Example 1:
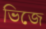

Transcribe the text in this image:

ভিজে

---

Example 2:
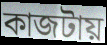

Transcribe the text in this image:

কাজটায়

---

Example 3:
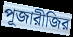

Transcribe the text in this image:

পূজারীজির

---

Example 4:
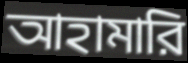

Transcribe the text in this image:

আহামারি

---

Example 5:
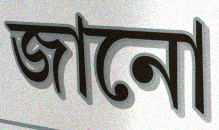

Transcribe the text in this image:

জানো